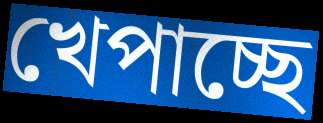
খেপাচ্ছে